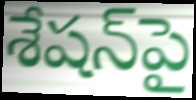
శేషన్‌పై